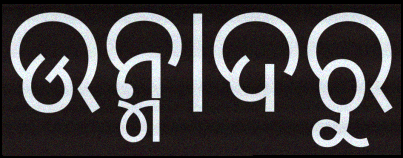
ଉନ୍ମାଦରୁ